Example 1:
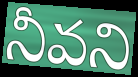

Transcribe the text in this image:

నీవని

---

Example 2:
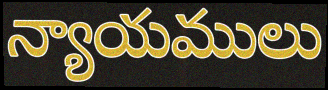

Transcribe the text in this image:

న్యాయములు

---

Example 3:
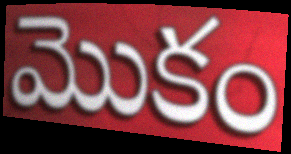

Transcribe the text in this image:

మొకం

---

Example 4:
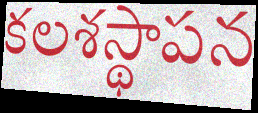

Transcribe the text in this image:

కలశస్థాపన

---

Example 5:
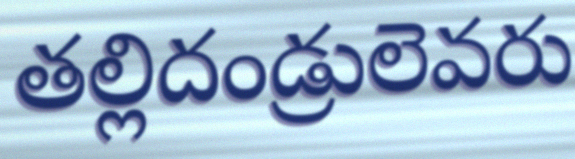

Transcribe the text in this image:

తల్లిదండ్రులెవరు